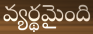
వ్యర్థమైంది